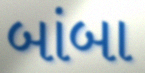
બાંબા